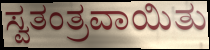
ಸ್ವತಂತ್ರವಾಯಿತು